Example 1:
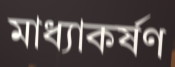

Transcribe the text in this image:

মাধ্যাকৰ্ষণ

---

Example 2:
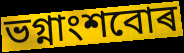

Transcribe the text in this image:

ভগ্নাংশবোৰ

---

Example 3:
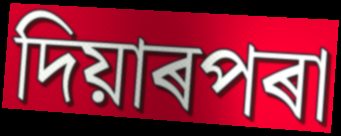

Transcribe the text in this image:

দিয়াৰপৰা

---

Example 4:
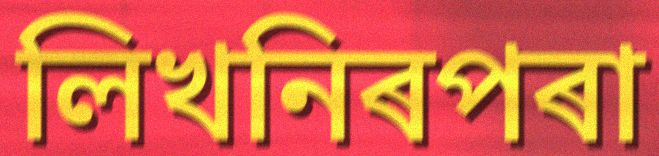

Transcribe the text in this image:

লিখনিৰপৰা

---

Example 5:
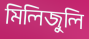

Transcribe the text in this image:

মিলিজুলি